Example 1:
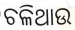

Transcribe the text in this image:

ଚଳିଥାଉ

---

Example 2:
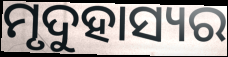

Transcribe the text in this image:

ମୃଦୁହାସ୍ୟର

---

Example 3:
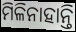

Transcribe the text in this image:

ମିଳିନାହାନ୍ତି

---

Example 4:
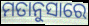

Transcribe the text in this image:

ମତାନୁସାରେ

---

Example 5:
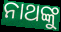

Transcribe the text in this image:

ନାଥଙ୍କୁ